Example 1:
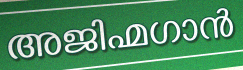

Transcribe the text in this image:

അജിഹ്മഗാൻ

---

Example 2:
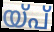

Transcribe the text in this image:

യ്പ്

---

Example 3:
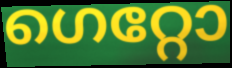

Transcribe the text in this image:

ഗെറ്റോ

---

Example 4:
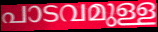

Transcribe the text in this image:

പാടവമുള്ള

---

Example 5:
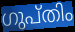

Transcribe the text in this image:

ഗുപ്തിം